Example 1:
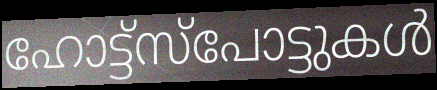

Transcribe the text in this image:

ഹോട്ട്സ്പോട്ടുകൾ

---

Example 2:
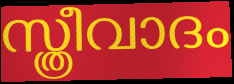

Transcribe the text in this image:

സ്ത്രീവാദം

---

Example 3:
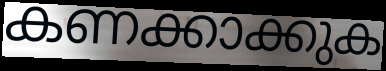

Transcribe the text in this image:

കണക്കാക്കുക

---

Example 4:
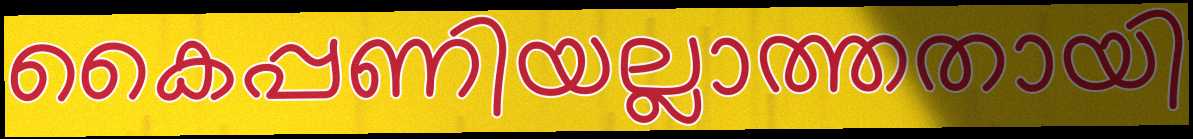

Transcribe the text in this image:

കൈപ്പണിയല്ലാത്തതായി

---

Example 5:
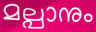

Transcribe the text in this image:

മല്പാനും